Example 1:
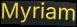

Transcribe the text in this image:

Myriam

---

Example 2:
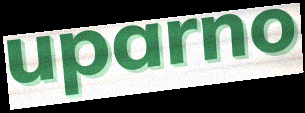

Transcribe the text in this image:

uparno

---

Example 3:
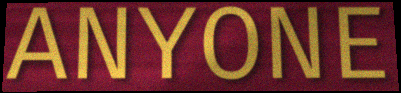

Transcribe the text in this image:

ANYONE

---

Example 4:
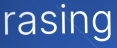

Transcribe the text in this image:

rasing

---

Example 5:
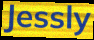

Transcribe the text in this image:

Jessly